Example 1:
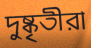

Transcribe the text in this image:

দুষ্কৃতীরা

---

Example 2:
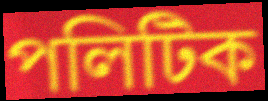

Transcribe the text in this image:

পলিটিক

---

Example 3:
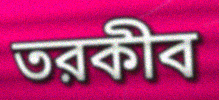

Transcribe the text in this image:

তরকীব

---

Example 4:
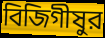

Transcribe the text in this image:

বিজিগীষুর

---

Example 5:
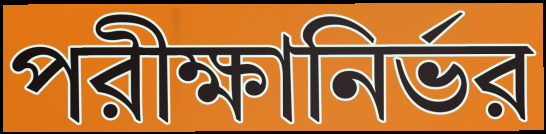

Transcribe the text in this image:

পরীক্ষানির্ভর